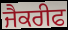
ਜੈਕਰੀਫ